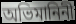
অভিমানিনী